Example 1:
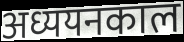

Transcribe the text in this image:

अध्ययनकाल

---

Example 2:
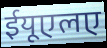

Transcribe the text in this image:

ईयूएलए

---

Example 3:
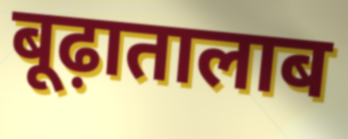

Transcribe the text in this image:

बूढ़ातालाब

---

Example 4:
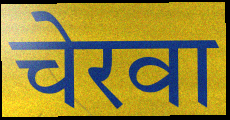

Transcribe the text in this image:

चेरवा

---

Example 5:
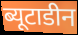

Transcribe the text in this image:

ब्यूटाडीन